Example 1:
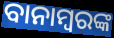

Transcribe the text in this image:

ବାନାମ୍ବରଙ୍କ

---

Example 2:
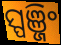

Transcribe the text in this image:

ସ୍ପଞ୍ଜିଂ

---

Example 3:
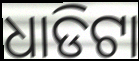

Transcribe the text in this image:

ଧାଡିଟା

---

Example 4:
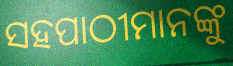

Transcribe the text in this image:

ସହପାଠୀମାନଙ୍କୁ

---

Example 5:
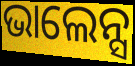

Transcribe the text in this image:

ଭାଲେନ୍ସ